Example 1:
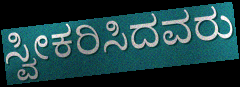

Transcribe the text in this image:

ಸ್ವೀಕರಿಸಿದವರು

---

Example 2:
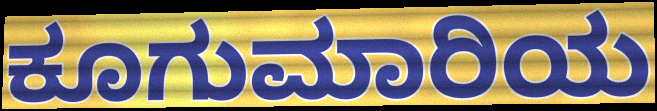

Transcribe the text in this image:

ಕೂಗುಮಾರಿಯ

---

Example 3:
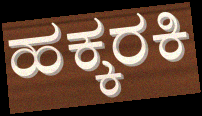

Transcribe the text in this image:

ಹಕ್ಕರಕಿ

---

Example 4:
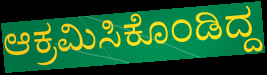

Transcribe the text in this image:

ಆಕ್ರಮಿಸಿಕೊಂಡಿದ್ದ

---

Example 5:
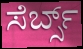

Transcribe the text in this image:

ಸೆರ್ಬ್ಸ್